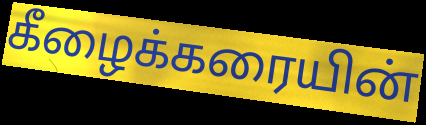
கீழைக்கரையின்